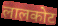
लालकोट